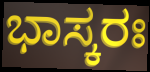
ಭಾಸ್ಕರಃ